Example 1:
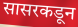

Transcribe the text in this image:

सासरकडून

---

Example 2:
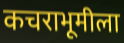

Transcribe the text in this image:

कचराभूमीला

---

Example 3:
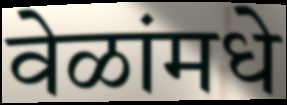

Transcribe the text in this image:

वेळांमधे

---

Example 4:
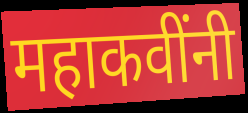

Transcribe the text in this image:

महाकवींनी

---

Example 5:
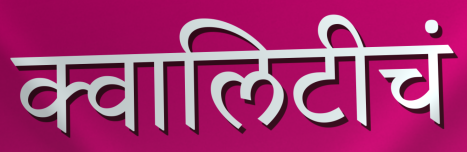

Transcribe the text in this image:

क्वालिटीचं